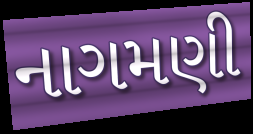
નાગમણી